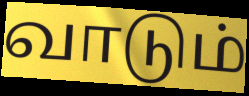
வாடும்